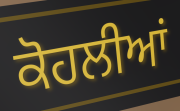
ਕੋਹਲੀਆਂ